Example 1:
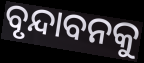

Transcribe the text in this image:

ବୃନ୍ଦାବନକୁ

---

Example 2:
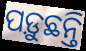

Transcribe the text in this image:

ପଡ଼ୁଛନ୍ତି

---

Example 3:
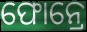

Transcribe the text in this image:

ଫୋନ୍ରେ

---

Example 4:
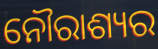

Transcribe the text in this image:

ନୌରାଶ୍ୟର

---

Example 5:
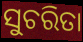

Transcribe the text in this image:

ସୁଚରିତା